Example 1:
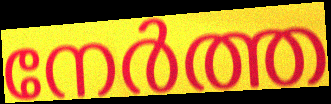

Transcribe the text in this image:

നേർത്ത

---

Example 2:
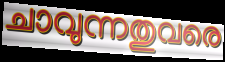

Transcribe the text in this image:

ചാവുന്നതുവരെ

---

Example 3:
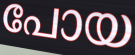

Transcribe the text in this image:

പോയ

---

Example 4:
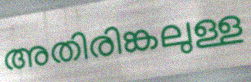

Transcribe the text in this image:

അതിരിങ്കലുള്ള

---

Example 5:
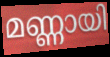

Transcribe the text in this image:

മണ്ണായി